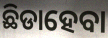
ଛିଡାହେବା